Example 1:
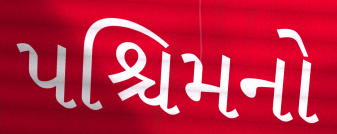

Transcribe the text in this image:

પશ્ચિમનો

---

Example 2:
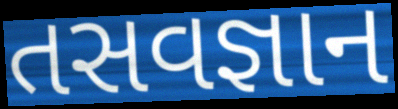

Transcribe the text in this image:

તસવજ્ઞાન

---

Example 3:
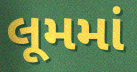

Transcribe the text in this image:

લૂમમાં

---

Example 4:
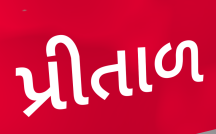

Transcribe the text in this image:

પ્રીતાળ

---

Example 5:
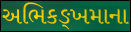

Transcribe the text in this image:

અભિકઙ્ખમાના